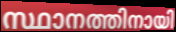
സ്ഥാനത്തിനായി